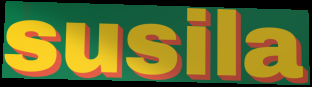
susila